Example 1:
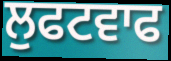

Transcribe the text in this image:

ਲੁਫਟਵਾਫ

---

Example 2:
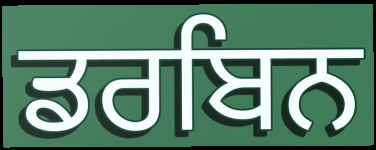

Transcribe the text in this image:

ਡਰਬਿਨ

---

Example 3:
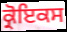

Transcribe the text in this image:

ਕ੍ਰੋਇਕਸ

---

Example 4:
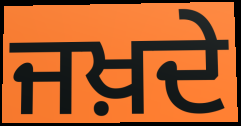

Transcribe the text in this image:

ਜਖ਼ਦੇ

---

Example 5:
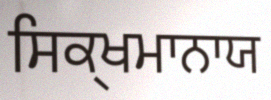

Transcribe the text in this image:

ਸਿਕ੍ਖਮਾਨਾਯ